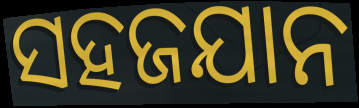
ସହଜଯାନ